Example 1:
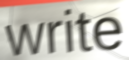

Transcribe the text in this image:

write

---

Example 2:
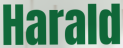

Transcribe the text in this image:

Harald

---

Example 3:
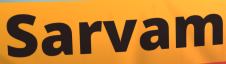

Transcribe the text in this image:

Sarvam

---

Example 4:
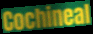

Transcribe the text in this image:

Cochineal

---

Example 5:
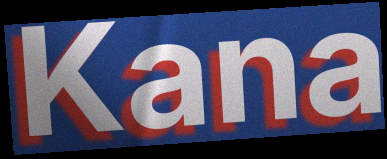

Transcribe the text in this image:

Kana